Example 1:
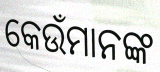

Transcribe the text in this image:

କେଉଁମାନଙ୍କ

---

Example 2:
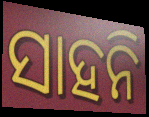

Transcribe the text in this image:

ସାହନି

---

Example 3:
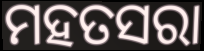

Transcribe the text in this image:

ମହତସରା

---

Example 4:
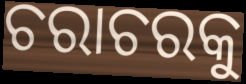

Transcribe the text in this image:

ଚରାଚରକୁ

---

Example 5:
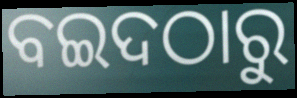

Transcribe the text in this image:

ବଇଦଠାରୁ